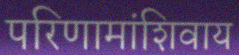
परिणामांशिवाय